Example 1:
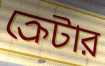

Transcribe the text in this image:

ক্রেটার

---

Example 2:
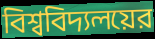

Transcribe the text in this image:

বিশ্ববিদ্যলয়ের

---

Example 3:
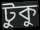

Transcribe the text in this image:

টুকু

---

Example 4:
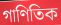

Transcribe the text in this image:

গাণিতিক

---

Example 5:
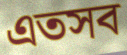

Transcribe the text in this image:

এতসব